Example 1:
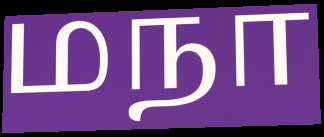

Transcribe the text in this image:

மநா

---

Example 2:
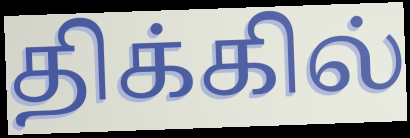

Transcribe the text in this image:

திக்கில்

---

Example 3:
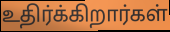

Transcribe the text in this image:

உதிர்க்கிறார்கள்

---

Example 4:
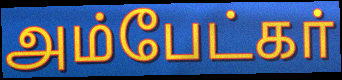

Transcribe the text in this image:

அம்பேட்கர்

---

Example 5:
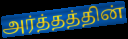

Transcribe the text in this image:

அர்த்தத்தின்